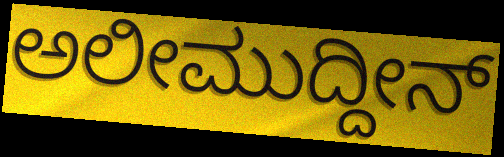
ಅಲೀಮುದ್ದೀನ್